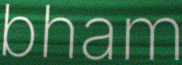
bham